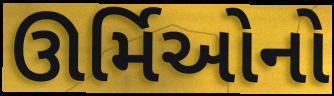
ઊર્મિઓનો